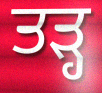
ਤੜ੍ਹ